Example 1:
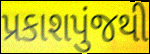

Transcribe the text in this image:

પ્રકાશપુંજથી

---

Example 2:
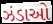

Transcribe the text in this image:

ઝંડાઓ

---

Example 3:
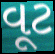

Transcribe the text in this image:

વૂટ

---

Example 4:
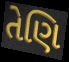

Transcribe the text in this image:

તેણિ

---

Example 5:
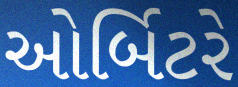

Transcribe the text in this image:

ઓર્બિટરે